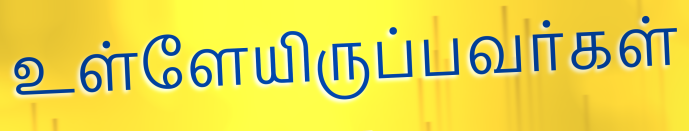
உள்ளேயிருப்பவர்கள்